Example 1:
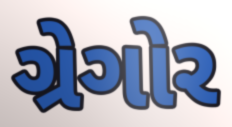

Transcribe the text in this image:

ગ્રેગોર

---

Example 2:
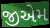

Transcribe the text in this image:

જીએમ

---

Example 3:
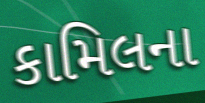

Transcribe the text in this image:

કામિલના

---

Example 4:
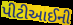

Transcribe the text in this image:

પીટીઆઈની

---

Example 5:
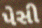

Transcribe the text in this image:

પેસી